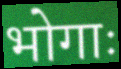
भोगाः